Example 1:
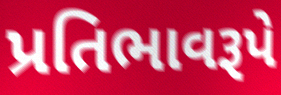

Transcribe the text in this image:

પ્રતિભાવરૂપે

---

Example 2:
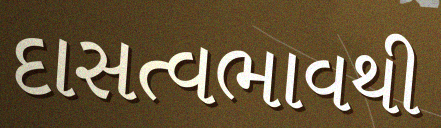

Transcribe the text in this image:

દાસત્વભાવથી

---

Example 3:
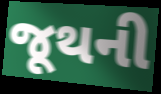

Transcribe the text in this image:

જૂથની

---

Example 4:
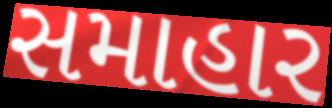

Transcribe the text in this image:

સમાહાર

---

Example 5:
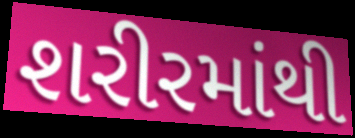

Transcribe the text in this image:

શરીરમાંથી